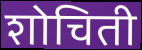
शोचिती